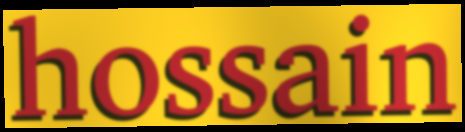
hossain